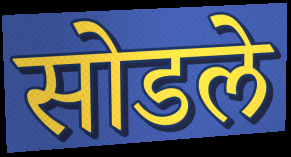
सोडले